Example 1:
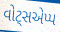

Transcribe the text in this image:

વોટ્સએપ્પ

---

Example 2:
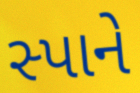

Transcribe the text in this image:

સ્પાને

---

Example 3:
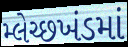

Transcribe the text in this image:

મ્લેચ્છખંડમાં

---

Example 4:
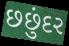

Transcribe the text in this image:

છછુંદર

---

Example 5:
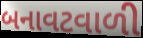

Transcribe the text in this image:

બનાવટવાળી